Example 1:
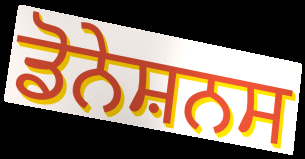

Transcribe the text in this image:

ਡੋਨੇਸ਼ਨਸ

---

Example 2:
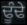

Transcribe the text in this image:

ਢੂੰਢੇ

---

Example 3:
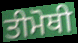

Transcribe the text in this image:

ਤੀਮੋਥੀ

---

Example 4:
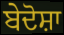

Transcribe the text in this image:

ਬੇਦੋਸ਼ਾ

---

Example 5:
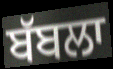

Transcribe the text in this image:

ਬੱਬਲਾ